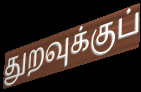
துறவுக்குப்